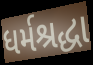
ધર્મશ્રદ્ધા